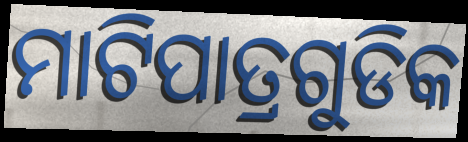
ମାଟିପାତ୍ରଗୁଡିକ